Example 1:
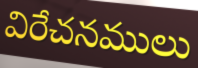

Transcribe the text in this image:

విరేచనములు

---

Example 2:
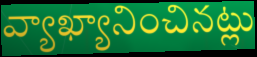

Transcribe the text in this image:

వ్యాఖ్యానించినట్లు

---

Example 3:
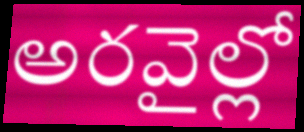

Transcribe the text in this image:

అరవైల్లో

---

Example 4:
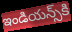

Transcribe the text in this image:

ఇండియన్స్‌కి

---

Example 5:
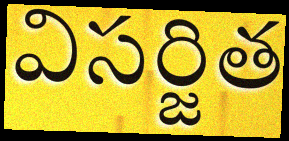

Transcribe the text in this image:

విసర్జిత